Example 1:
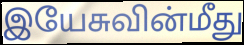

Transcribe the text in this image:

இயேசுவின்மீது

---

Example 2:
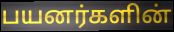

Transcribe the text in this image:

பயனர்களின்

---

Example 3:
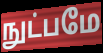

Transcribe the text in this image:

நுட்பமே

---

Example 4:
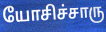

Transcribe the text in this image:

யோசிச்சாரு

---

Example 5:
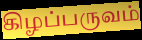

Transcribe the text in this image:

கிழப்பருவம்